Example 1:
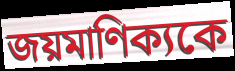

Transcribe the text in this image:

জয়মাণিক্যকে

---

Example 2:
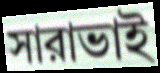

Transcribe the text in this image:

সারাভাই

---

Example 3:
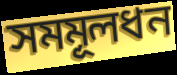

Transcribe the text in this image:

সমমূলধন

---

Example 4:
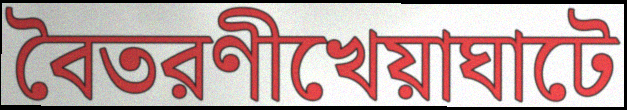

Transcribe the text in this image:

বৈতরণীখেয়াঘাটে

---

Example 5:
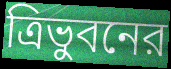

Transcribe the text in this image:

ত্রিভুবনের